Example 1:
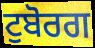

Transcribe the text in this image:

ਟੁਬੋਰਗ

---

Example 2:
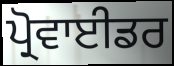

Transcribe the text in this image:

ਪ੍ਰੋਵਾਈਡਰ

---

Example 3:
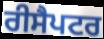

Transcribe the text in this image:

ਰੀਸੈਪਟਰ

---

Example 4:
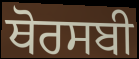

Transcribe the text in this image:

ਥੋਰਸਬੀ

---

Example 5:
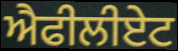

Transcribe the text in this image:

ਐਫੀਲੀਏਟ